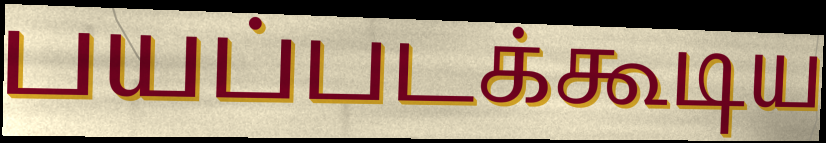
பயப்படக்கூடிய